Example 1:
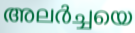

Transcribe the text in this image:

അലർച്ചയെ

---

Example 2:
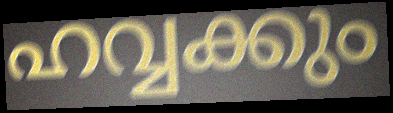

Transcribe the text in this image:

ഹവ്വക്കും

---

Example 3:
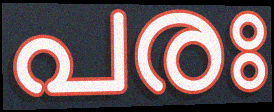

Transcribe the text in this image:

പരഃ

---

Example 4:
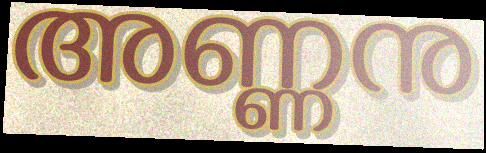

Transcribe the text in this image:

അണ്ണനു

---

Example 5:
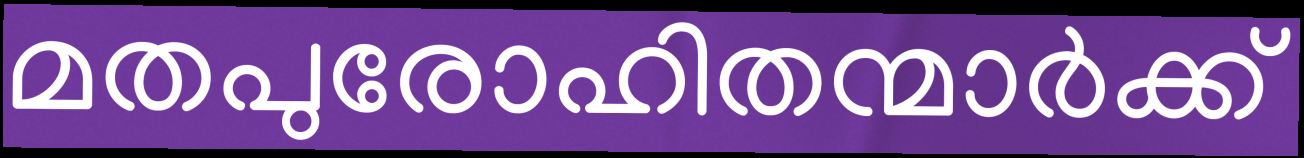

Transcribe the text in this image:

മതപുരോഹിതന്മാർക്ക്